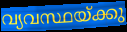
വ്യവസ്ഥയ്ക്കു